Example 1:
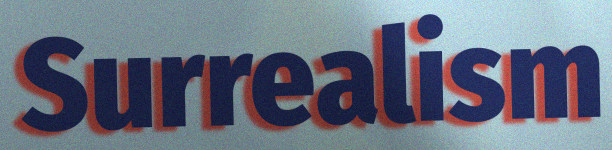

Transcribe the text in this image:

Surrealism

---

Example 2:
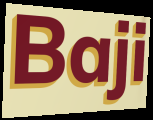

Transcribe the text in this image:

Baji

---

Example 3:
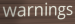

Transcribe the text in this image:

warnings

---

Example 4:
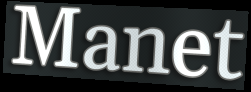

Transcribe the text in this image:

Manet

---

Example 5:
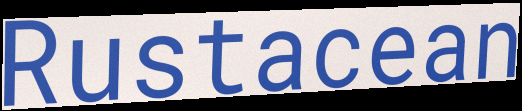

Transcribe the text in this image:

Rustacean